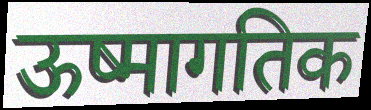
ऊष्मागतिक